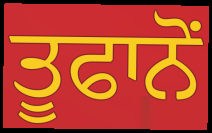
ਤੂਫਾਨੋਂ